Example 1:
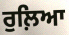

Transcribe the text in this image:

ਰੁਲ਼ਿਆ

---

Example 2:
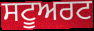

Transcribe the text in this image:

ਸਟੂਅਰਟ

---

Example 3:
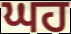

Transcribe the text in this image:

ਘਹ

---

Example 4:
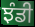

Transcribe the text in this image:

ਝੰਡੀ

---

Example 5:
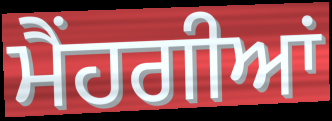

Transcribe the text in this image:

ਮੈਂਹਗੀਆਂ